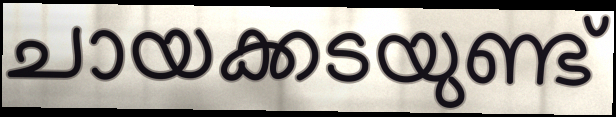
ചായക്കടയുണ്ട്